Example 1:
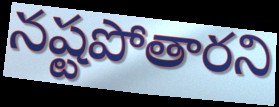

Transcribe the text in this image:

నష్టపోతారని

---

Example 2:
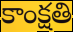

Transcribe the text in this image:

కాంక్షతి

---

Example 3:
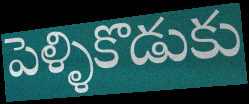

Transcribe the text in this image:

పెళ్ళికొడుకు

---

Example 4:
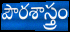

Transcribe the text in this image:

పౌరశాస్త్రం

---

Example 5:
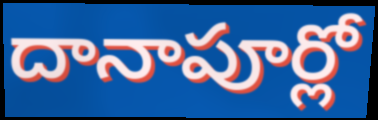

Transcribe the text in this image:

దానాపూర్లో